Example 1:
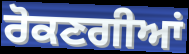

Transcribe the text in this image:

ਰੋਕਣਗੀਆਂ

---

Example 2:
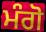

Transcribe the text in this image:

ਮੰਗੋ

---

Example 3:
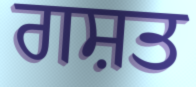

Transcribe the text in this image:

ਗਸ਼ਤ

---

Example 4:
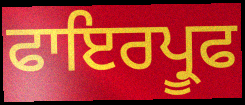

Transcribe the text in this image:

ਫਾਇਰਪ੍ਰੂਫ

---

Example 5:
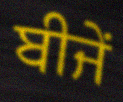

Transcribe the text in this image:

ਬੀਜੇਂ